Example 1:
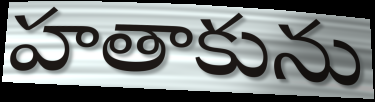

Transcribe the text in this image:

హతాకును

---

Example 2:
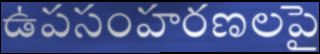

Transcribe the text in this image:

ఉపసంహరణలపై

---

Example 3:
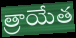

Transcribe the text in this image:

త్రాయేత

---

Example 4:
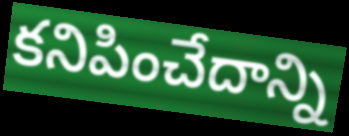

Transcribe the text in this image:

కనిపించేదాన్ని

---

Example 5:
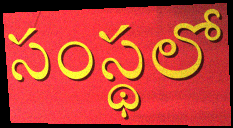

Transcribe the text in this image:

సంస్థలో